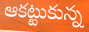
ఆకట్టుకున్న